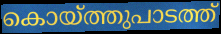
കൊയ്ത്തുപാടത്ത്